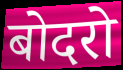
बोदरो